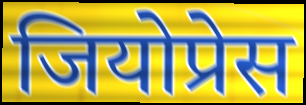
जियोप्रेस